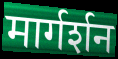
मार्गर्शन